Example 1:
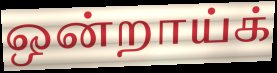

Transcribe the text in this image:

ஒன்றாய்க்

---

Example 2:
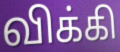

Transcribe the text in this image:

விக்கி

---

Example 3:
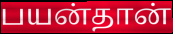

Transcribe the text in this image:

பயன்தான்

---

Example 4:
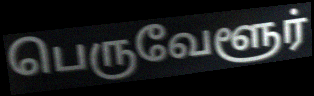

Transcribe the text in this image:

பெருவேளூர்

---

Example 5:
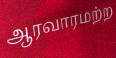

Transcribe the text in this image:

ஆரவாரமற்ற